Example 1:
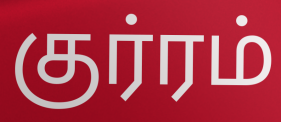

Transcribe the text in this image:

குர்ரம்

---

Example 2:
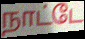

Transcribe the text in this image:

நாட்டே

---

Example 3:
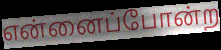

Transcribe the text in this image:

என்னைப்போன்ற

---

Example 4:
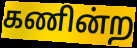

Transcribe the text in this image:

கணின்ற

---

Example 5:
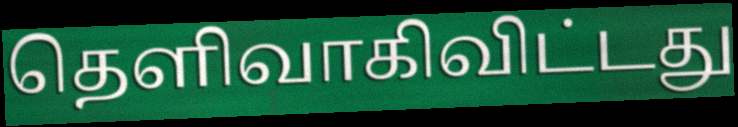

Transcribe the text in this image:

தெளிவாகிவிட்டது